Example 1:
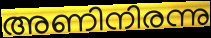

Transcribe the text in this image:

അണിനിരന്നു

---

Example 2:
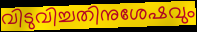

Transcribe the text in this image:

വിടുവിച്ചതിനുശേഷവും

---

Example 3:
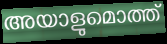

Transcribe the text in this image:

അയാളുമൊത്ത്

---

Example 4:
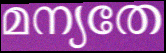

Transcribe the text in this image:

മന്യതേ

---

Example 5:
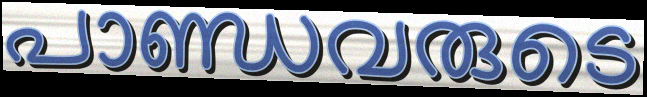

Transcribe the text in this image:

പാണ്ഡവരുടെ